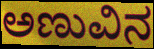
ಅಣುವಿನ